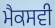
ਮੈਕਸਵੀ